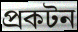
প্রকটন